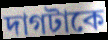
দাগটাকে